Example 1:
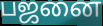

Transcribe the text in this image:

பஜனை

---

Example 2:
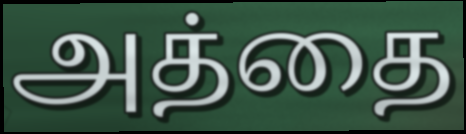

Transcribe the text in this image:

அத்தை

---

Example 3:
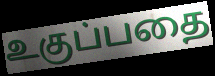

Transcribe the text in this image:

உகுப்பதை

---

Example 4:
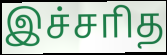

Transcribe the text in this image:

இச்சரித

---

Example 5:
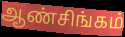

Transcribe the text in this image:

ஆண்சிங்கம்